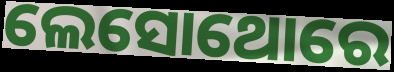
ଲେସୋଥୋରେ